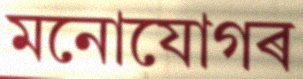
মনোযোগৰ